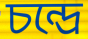
চন্দ্রে